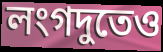
লংগদুতেও